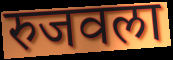
रुजवला